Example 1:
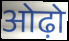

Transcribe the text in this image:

ओढ़ो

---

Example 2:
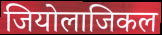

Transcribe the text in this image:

जियोलाजिकल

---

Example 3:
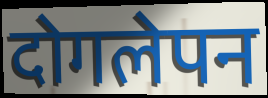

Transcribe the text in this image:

दोगलेपन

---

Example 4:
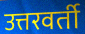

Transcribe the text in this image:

उत्तरवर्ती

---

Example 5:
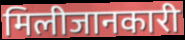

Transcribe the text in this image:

मिलीजानकारी